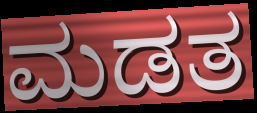
ಮಡತ